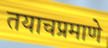
तयाचप्रमाणे